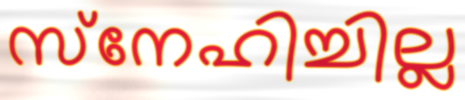
സ്‌നേഹിച്ചില്ല